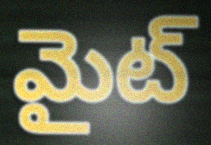
మైట్